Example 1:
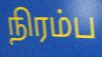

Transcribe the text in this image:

நிரம்ப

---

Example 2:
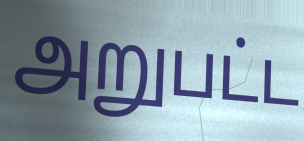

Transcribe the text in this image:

அறுபட்ட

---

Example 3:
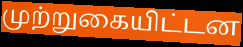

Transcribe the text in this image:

முற்றுகையிட்டன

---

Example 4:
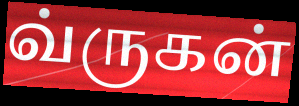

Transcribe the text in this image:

வ்ருகன்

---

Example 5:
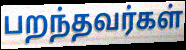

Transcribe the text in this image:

பறந்தவர்கள்